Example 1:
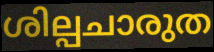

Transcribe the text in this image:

ശില്പചാരുത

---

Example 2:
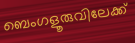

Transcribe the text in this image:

ബെംഗളൂരുവിലേക്ക്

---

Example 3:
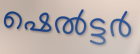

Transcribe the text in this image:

ഷെൽട്ടർ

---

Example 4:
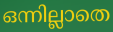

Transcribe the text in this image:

ഒന്നില്ലാതെ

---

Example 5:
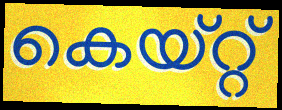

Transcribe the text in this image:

കെയ്റ്റ്